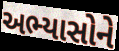
અભ્યાસોને